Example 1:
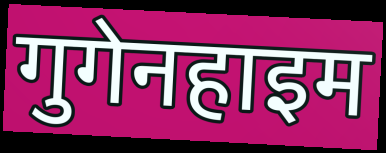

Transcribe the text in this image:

गुगेनहाइम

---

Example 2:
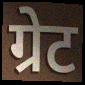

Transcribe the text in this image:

ग्रेट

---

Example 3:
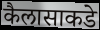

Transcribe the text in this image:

कैलासाकडे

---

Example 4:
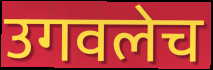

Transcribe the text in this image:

उगवलेच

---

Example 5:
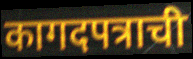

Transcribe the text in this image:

कागदपत्राची